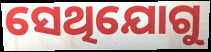
ସେଥିଯୋଗୁ